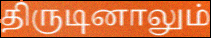
திருடினாலும்